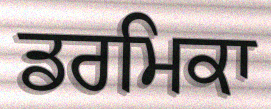
ਡਰਮਿਕਾ